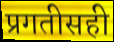
प्रगतीसही